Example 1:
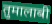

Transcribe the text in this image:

तुमालाबी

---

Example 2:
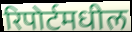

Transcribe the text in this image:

रिपोर्टमधील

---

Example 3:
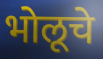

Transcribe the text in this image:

भोलूचे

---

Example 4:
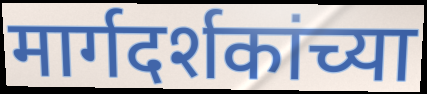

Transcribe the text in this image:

मार्गदर्शकांच्या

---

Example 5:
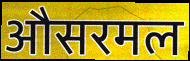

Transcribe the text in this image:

औसरमल